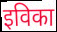
इविका